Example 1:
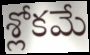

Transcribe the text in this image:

శ్లోకమే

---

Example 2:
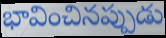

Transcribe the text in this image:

భావించినప్పుడు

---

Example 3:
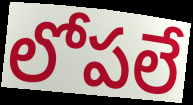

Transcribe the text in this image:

లోపలే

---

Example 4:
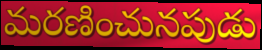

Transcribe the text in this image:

మరణించునపుడు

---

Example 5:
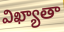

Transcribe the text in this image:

విఖ్యాతా